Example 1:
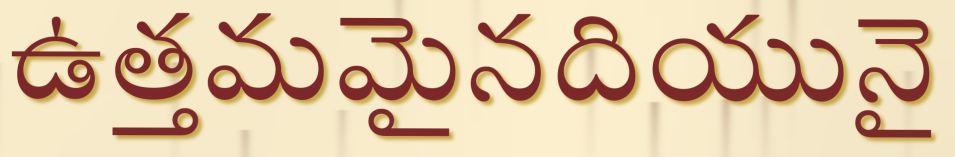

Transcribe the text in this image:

ఉత్తమమైనదియునై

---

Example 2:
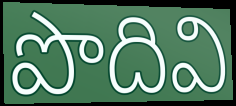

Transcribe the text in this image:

పొదివి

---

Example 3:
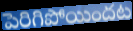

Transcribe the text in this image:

పెరిగిపోయిందట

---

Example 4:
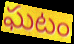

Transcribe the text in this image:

ఘటం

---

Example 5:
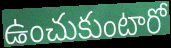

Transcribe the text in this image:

ఉంచుకుంటారో